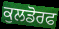
ਕੁਲਡੋਰਫ